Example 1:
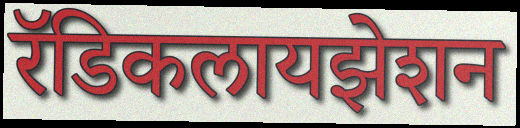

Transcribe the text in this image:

रॅडिकलायझेशन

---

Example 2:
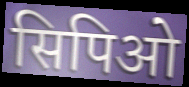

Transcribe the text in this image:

सिपिओ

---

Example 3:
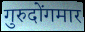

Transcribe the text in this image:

गुरुदोंगमार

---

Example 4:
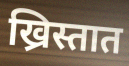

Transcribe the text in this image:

ख्रिस्तात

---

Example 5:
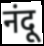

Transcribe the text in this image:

नंदू